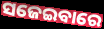
ସଜେଇବାରେ